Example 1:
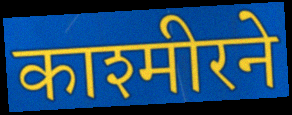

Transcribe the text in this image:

काश्मीरने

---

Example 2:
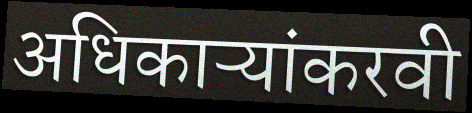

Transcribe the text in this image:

अधिकाऱ्यांकरवी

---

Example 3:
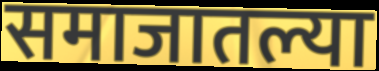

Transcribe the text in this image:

समाजातल्या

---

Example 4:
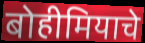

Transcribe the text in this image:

बोहीमियाचे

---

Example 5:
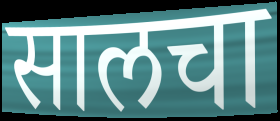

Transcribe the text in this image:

सालचा